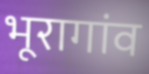
भूरागांव